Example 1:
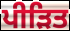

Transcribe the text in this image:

ਪੀੜਿਤ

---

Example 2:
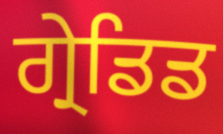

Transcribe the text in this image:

ਗ੍ਰੇਡਿਡ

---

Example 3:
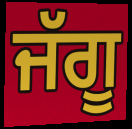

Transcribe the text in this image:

ਜੱਗੂ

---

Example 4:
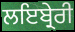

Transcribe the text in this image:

ਲਇਬ੍ਰੇਰੀ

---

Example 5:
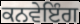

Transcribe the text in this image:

ਕਨਵੇਇੰਗ